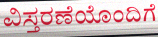
ವಿಸ್ತರಣೆಯೊಂದಿಗೆ